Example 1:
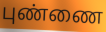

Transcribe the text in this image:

புண்ணை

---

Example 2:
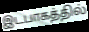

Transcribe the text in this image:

இடபாகத்தில்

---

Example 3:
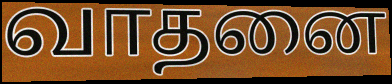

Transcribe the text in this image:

வாதனை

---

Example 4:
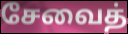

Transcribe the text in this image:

சேவைத்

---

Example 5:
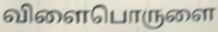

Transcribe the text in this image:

விளைபொருளை